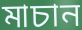
মাচান